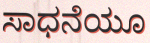
ಸಾಧನೆಯೂ